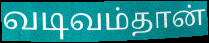
வடிவம்தான்